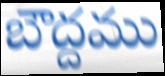
బౌద్దము